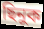
ছিনুক